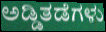
ಅಡ್ಡಿತಡೆಗಳು